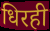
धिरही